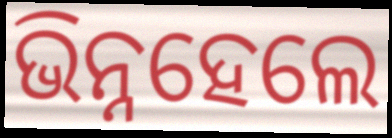
ଭିନ୍ନହେଲେ